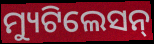
ମ୍ୟୁଟିଲେସନ୍